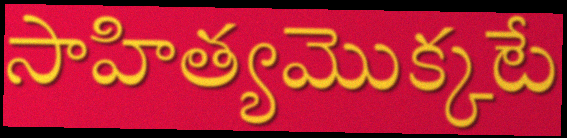
సాహిత్యమొక్కటే